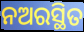
ନଅରସ୍ଥିତ